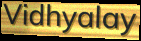
Vidhyalay